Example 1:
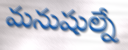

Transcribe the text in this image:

మనుషుల్నే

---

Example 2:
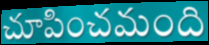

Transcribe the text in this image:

చూపించమంది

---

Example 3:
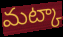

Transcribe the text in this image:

మట్కా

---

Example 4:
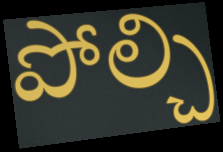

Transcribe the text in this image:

పోల్చి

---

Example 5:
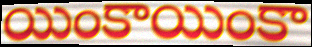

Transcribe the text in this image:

యింకాయింకా